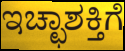
ಇಚ್ಛಾಶಕ್ತಿಗೆ